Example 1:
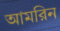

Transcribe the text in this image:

আমরিন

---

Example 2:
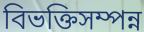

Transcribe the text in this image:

বিভক্তিসম্পন্ন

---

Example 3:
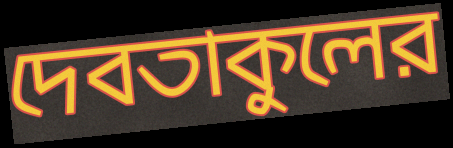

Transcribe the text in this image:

দেবতাকুলের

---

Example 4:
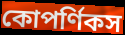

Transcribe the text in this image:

কোপর্ণিকস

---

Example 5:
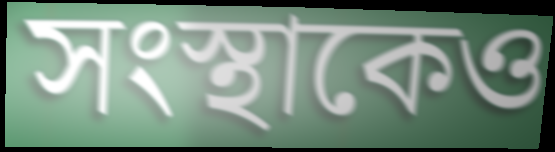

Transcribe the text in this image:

সংস্থাকেও